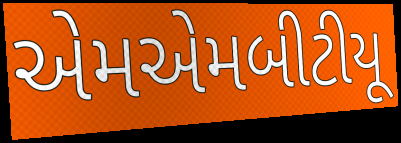
એમએમબીટીયૂ